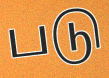
படு